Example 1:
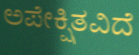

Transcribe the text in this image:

ಅಪೇಕ್ಷಿತವಿದೆ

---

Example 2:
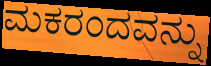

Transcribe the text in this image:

ಮಕರಂದವನ್ನು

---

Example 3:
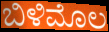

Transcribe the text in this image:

ಬಿಳಿಮೊಲ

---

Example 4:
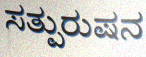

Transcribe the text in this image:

ಸತ್ಪುರುಷನ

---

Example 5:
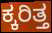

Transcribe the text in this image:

ಕ್ಕರಿತ್ತ